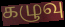
கழுவு